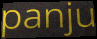
panju